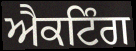
ਐਕਟਿੰਗ